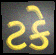
ટકે